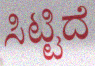
ಸಿಟ್ಟಿದೆ